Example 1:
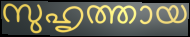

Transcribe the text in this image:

സുഹൃത്തായ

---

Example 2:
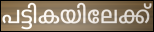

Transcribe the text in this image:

പട്ടികയിലേക്ക്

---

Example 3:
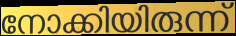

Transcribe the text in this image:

നോക്കിയിരുന്ന്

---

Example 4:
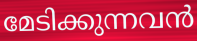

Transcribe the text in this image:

മേടിക്കുന്നവൻ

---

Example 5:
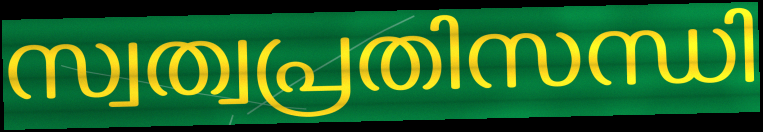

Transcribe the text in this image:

സ്വത്വപ്രതിസന്ധി